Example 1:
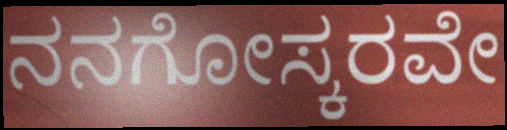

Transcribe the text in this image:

ನನಗೋಸ್ಕರವೇ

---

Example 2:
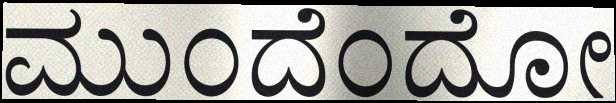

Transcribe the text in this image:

ಮುಂದೆಂದೋ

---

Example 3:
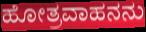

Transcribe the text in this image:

ಹೋತ್ರವಾಹನನು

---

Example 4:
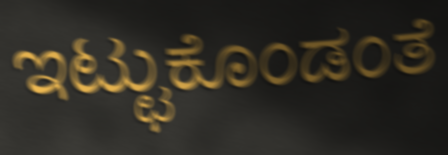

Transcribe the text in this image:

ಇಟ್ಟುಕೊಂಡಂತೆ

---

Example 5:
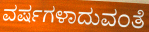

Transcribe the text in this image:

ವರ್ಷಗಳಾದುವಂತೆ